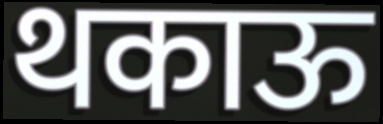
थकाऊ